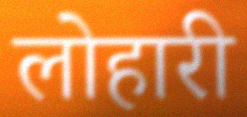
लोहारी